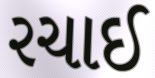
રચાઈ